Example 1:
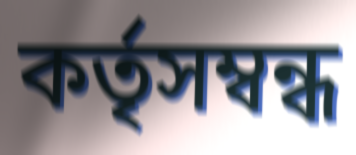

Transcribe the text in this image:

কর্তৃসম্বন্ধ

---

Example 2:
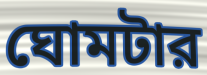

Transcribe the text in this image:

ঘোমটার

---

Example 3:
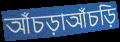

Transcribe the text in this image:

আঁচড়াআঁচড়ি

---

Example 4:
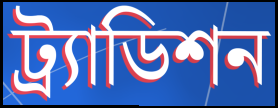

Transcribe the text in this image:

ট্র্যাডিশন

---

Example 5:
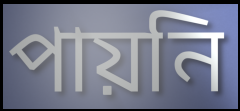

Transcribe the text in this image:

পায়নি